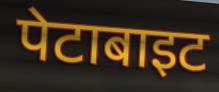
पेटाबाइट